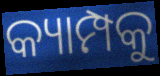
କ୍ୟାମ୍ପକୁ